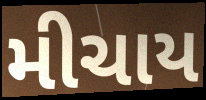
મીચાય